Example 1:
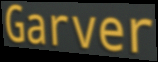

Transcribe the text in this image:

Garver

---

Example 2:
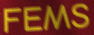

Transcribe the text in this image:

FEMS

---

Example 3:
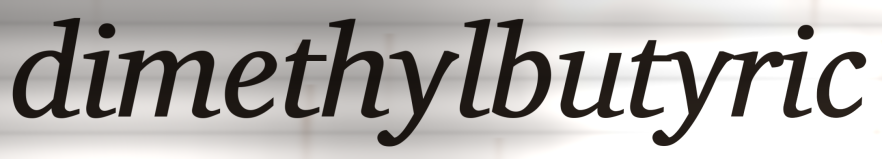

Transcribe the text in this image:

dimethylbutyric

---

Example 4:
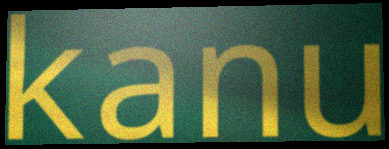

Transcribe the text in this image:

kanu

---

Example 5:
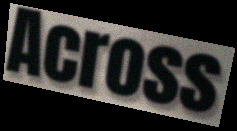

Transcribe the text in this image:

Across